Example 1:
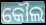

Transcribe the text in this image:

କୌଲ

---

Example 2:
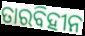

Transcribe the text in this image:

ତାରବିହୀନ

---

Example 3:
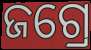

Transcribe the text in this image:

ଜଗ୍ରେ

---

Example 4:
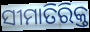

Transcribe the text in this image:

ସୀମାତିରିକ୍ତ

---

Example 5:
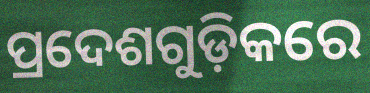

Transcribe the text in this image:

ପ୍ରଦେଶଗୁଡ଼ିକରେ